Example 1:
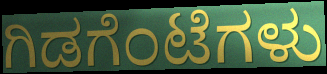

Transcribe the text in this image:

ಗಿಡಗೆಂಟೆಗಳು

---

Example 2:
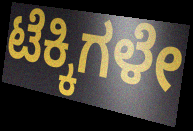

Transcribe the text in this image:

ಟೆಕ್ಕಿಗಳೇ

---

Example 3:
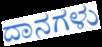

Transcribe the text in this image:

ದಾನಗಳು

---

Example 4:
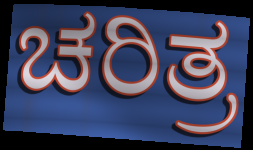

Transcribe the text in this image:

ಚರಿತ್ರ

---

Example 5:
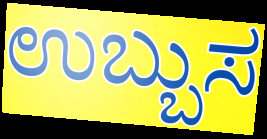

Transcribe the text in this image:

ಉಬ್ಬುಸ